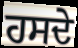
ਹਸਦੇ